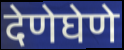
देणेघेणे